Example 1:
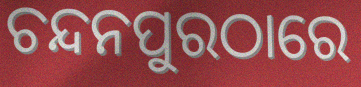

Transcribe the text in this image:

ଚନ୍ଦନପୁରଠାରେ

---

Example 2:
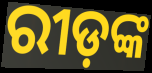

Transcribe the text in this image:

ରୀଡ଼ଙ୍କ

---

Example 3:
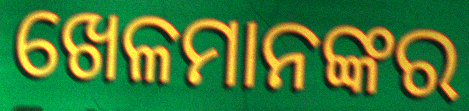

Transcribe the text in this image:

ଖେଳମାନଙ୍କର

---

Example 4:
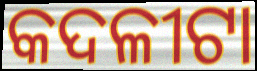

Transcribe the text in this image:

କଦଳୀଟା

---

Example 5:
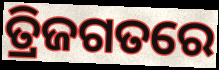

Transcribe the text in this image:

ତ୍ରିଜଗତରେ